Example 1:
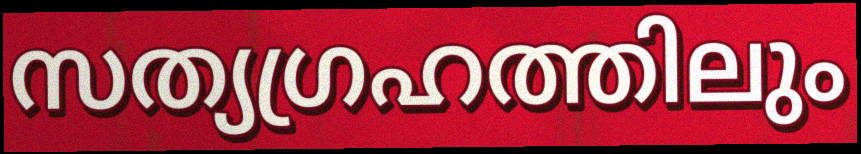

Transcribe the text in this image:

സത്യഗ്രഹത്തിലും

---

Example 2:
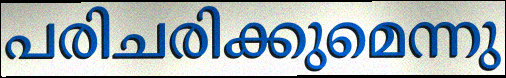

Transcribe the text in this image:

പരിചരിക്കുമെന്നു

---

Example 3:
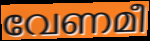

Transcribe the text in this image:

വേണമീ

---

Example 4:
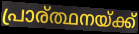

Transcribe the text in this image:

പ്രാര്ത്ഥനയ്ക്ക്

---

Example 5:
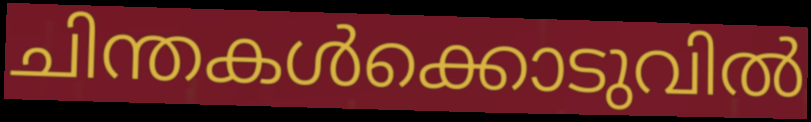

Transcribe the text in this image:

ചിന്തകൾക്കൊടുവിൽ